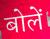
बोलें